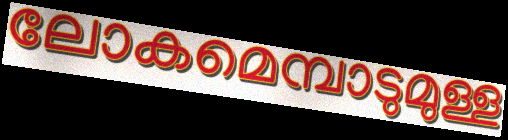
ലോകമെമ്പാടുമുള്ള